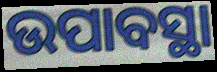
ଉପାବସ୍ଥା